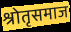
श्रोतृसमाज